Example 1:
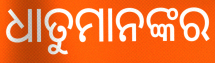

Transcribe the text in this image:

ଧାତୁମାନଙ୍କର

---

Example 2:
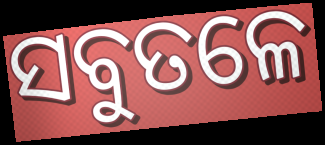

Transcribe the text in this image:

ସବୁତଳେ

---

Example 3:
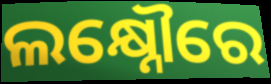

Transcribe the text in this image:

ଲକ୍ଷ୍ନୌରେ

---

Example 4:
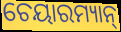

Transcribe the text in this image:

ଚେୟାରମ୍ୟାନ୍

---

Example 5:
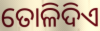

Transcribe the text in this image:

ତୋଳିଦିଏ